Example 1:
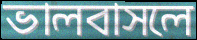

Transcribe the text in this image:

ভালবাসলে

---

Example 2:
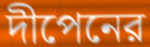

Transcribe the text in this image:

দীপেনের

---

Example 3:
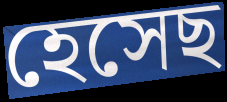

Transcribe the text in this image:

হেসেছ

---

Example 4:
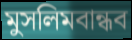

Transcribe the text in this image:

মুসলিমবান্ধব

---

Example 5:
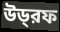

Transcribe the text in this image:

উড্‌রফ